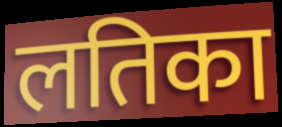
लतिका